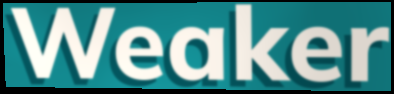
Weaker